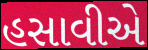
હસાવીએ